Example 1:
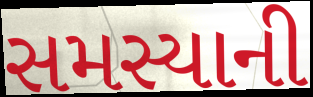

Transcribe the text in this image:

સમસ્યાની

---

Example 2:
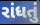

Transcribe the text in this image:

રાંધતું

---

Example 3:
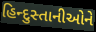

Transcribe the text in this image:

હિન્દુસ્તાનીઓને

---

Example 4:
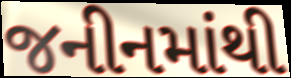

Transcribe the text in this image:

જનીનમાંથી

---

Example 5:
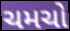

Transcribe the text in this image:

ચમચો